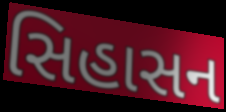
સિહાસન